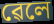
ৱেলে